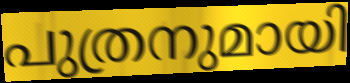
പുത്രനുമായി